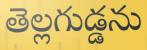
తెల్లగుడ్డను